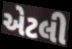
એટલી